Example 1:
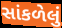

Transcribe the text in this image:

સાંકળેલું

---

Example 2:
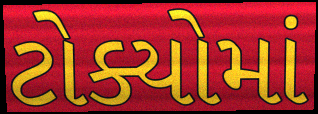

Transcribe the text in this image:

ટોક્યોમાં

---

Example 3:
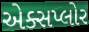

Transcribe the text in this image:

એક્સપ્લોર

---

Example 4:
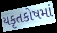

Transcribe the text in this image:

યકૃતકોષમાં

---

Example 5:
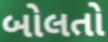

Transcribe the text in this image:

બોલતો